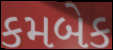
કમબેક